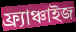
ফ্র্যাঞ্চাইজ